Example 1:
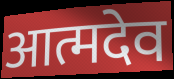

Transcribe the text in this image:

आत्मदेव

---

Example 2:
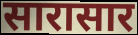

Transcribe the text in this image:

सारासार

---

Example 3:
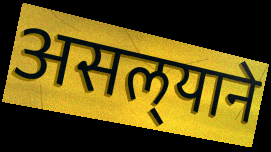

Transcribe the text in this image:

असल्याने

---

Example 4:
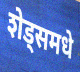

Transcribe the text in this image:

शेड्समधे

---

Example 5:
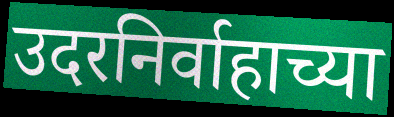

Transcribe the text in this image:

उदरनिर्वाहाच्या